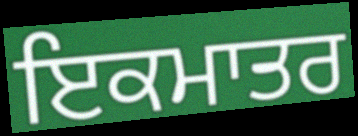
ਇਕਮਾਤਰ